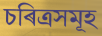
চৰিত্ৰসমূহ